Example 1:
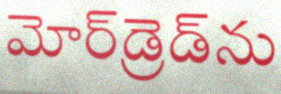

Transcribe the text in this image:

మోర్‌డ్రెడ్‌ను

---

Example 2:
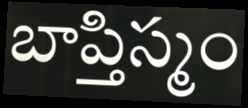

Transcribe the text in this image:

బాప్తిస్మం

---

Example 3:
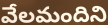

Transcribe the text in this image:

వేలమందిని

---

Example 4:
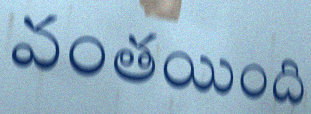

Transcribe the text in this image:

వంతయింది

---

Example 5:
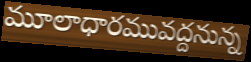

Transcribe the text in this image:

మూలాధారమువద్దనున్న